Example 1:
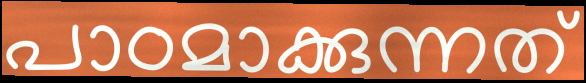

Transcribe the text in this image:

പാഠമാക്കുന്നത്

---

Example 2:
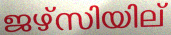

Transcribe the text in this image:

ജഴ്സിയില്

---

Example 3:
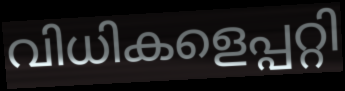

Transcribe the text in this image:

വിധികളെപ്പറ്റി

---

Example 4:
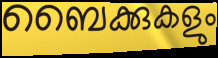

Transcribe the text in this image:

ബൈക്കുകളും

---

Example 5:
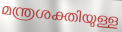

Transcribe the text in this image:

മന്ത്രശക്തിയുള്ള